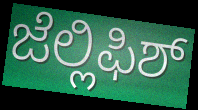
ಜೆಲ್ಲಿಫಿಶ್